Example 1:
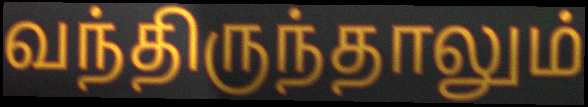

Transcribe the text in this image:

வந்திருந்தாலும்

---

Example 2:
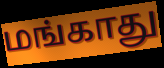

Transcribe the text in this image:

மங்காது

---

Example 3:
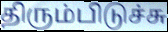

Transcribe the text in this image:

திரும்பிடுச்சு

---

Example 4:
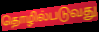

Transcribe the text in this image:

தொழில்படுவது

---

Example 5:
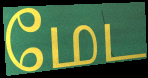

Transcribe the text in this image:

மேட